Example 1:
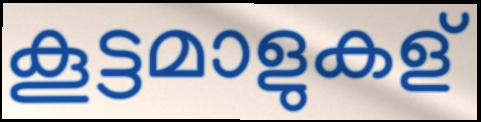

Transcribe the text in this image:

കൂട്ടമാളുകള്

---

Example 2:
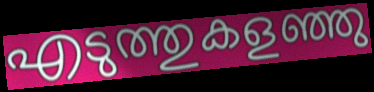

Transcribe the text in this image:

എടുത്തുകളഞ്ഞു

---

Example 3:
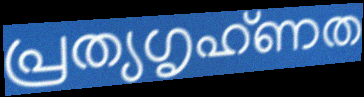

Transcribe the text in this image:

പ്രത്യഗൃഹ്ണത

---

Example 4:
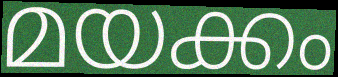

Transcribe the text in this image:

മയക്കം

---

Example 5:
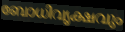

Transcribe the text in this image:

ബോധിവൃക്ഷവും